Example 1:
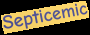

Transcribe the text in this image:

Septicemic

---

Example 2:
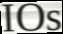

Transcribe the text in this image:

IOs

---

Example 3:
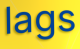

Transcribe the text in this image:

lags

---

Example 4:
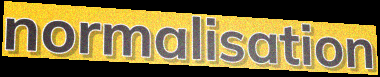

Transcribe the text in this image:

normalisation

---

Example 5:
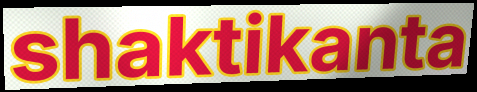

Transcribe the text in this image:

shaktikanta